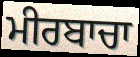
ਮੀਰਬਾਚਾ